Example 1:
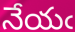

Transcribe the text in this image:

నేయఁ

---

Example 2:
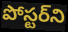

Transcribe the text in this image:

పోస్టర్‌ని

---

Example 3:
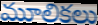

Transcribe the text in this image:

మూలికలు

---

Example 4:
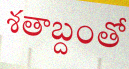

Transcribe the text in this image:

శతాబ్దంతో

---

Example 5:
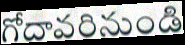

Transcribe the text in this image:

గోదావరినుండి